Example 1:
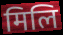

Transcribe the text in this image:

मिलि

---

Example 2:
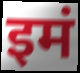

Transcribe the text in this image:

इमं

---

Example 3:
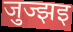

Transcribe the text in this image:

जुज्झइ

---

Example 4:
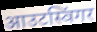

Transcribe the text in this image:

आउटस्विंगर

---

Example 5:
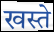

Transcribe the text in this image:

खस्ते